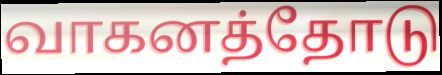
வாகனத்தோடு